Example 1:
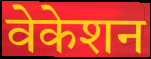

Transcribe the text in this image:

वेकेशन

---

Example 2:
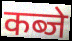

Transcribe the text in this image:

कब्जे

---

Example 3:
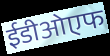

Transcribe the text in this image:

ईडीओएफ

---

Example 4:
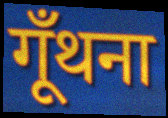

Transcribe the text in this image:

गूँथना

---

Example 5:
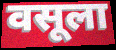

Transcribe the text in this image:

वसूला